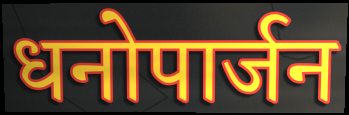
धनोपार्जन